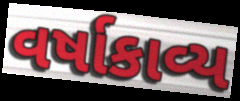
વર્ષાકાવ્ય